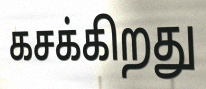
கசக்கிறது